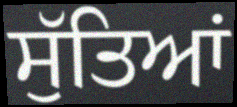
ਸੁੱਤਿਆਂ